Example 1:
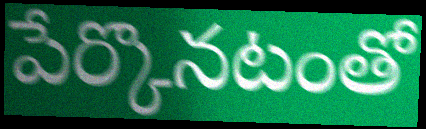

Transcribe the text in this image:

పేర్కొనటంతో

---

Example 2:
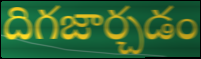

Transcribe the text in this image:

దిగజార్చడం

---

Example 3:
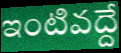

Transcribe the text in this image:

ఇంటివద్దే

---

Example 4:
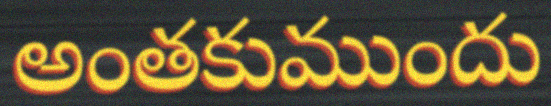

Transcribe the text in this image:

అంతకుముందు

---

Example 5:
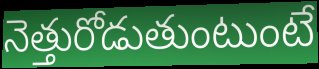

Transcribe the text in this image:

నెత్తురోడుతుంటుంటే